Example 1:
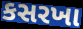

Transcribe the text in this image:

કસરખા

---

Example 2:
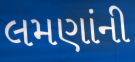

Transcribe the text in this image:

લમણાંની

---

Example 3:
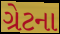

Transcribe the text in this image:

ગ્રેટના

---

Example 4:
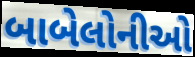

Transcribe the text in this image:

બાબેલોનીઓ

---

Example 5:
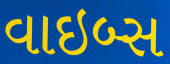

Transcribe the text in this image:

વાઇબ્સ